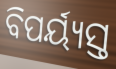
ବିପର୍ୟ୍ୟସ୍ତ